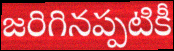
జరిగినప్పటికీ